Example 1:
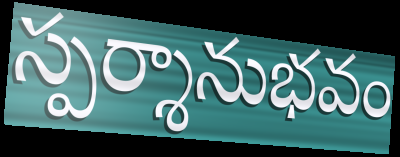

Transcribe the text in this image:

స్పర్శానుభవం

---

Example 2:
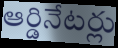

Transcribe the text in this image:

ఆర్డినేటర్లు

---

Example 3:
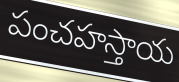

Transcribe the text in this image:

పంచహస్తాయ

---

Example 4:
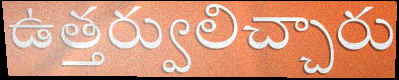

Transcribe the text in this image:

ఉత్తర్వులిచ్చారు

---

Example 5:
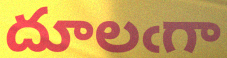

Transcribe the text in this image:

దూలఁగా